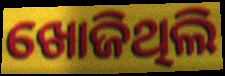
ଖୋଜିଥିଲି